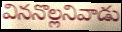
విననొల్లనివాడు